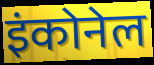
इंकोनेल